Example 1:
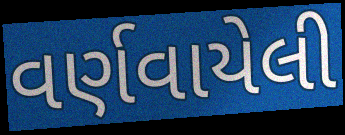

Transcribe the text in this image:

વર્ણવાયેલી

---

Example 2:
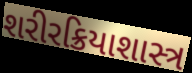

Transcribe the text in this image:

શરીરક્રિયાશાસ્ત્ર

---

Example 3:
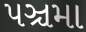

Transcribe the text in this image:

પઞ્ચમા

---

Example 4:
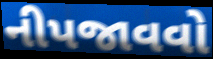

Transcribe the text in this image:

નીપજાવવો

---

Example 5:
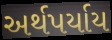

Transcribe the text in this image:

અર્થપર્યાય